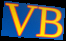
VB